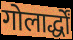
गोलार्द्धों